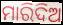
ମାରିଦିଅ